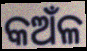
କଅଁଳ